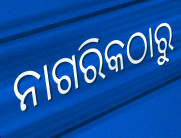
ନାଗରିକଠାରୁ